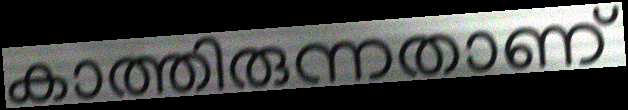
കാത്തിരുന്നതാണ്